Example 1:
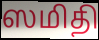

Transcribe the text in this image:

ஸமிதி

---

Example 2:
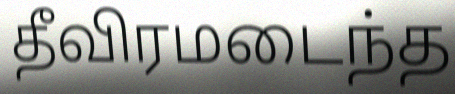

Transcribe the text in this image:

தீவிரமடைந்த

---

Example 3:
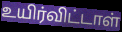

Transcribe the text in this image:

உயிர்விட்டாள்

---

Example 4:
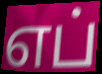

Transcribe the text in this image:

எப்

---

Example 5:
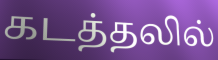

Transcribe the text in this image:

கடத்தலில்